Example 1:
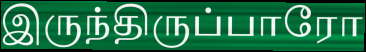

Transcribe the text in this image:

இருந்திருப்பாரோ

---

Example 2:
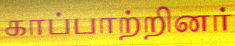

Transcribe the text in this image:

காப்பாற்றினர்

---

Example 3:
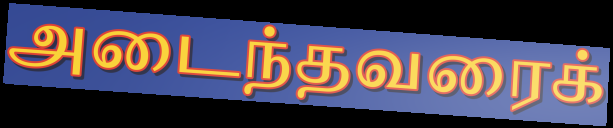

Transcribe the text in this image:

அடைந்தவரைக்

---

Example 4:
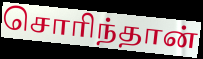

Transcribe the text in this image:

சொரிந்தான்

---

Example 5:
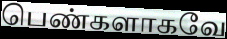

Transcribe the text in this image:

பெண்களாகவே